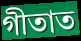
গীতাত